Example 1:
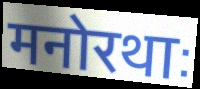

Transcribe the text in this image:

मनोरथाः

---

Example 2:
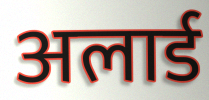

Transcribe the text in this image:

अलार्ड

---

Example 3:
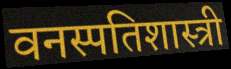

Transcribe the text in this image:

वनस्पतिशास्त्री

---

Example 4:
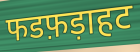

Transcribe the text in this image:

फडफ़ड़ाहट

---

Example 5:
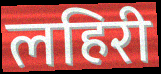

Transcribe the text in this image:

लहिरी